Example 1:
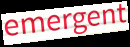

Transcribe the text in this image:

emergent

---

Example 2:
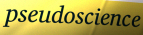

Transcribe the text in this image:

pseudoscience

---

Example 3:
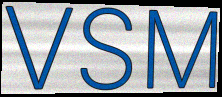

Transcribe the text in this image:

VSM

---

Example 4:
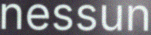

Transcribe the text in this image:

nessun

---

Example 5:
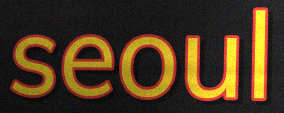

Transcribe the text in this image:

seoul